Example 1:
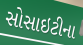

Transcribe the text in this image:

સોસાઇટીના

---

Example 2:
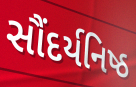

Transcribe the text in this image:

સૌંદર્યનિષ્ઠ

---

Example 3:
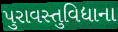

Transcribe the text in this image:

પુરાવસ્તુવિદ્યાના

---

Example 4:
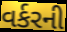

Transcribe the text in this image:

વર્કરની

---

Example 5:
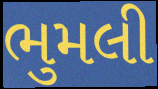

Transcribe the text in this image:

ભુમલી